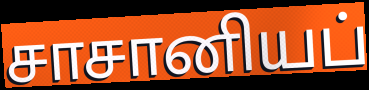
சாசானியப்